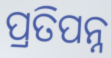
ପ୍ରତିପନ୍ନ